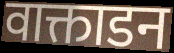
वाक्ताडन